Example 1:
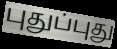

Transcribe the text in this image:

புதுப்புது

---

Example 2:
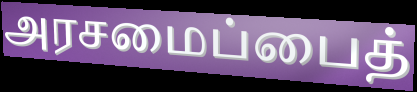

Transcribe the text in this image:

அரசமைப்பைத்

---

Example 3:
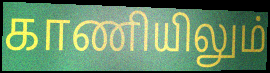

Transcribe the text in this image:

காணியிலும்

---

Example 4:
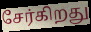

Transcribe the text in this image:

சேர்கிறது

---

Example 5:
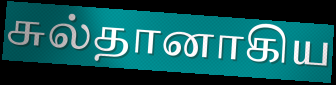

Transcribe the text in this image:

சுல்தானாகிய